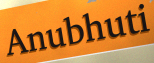
Anubhuti